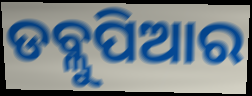
ଡବ୍ଲୁପିଆର